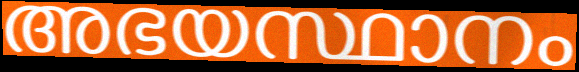
അഭയസ്ഥാനം